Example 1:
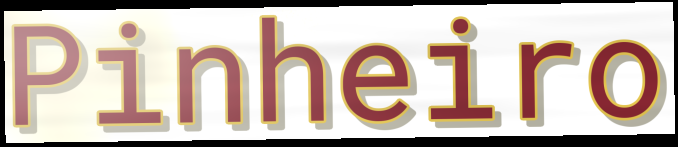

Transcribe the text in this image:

Pinheiro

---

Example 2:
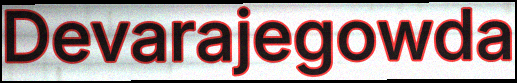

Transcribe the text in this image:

Devarajegowda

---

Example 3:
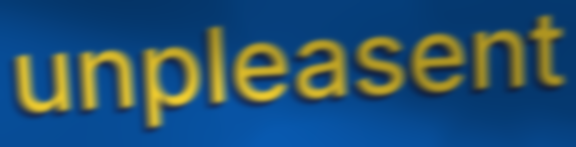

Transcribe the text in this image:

unpleasent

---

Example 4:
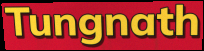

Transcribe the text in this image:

Tungnath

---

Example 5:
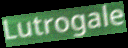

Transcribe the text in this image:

Lutrogale